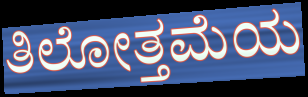
ತಿಲೋತ್ತಮೆಯ